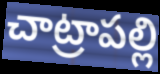
చాట్రాపల్లి